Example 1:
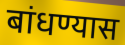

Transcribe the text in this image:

बांधण्यास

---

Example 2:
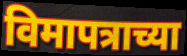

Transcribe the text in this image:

विमापत्राच्या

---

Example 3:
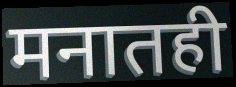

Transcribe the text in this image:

मनातही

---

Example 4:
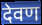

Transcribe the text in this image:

देवण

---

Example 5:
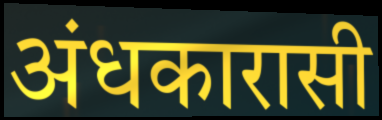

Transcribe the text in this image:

अंधकारासी